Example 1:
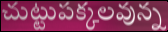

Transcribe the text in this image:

చుట్టుపక్కలవున్న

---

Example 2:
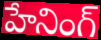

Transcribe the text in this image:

హేనింగ్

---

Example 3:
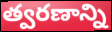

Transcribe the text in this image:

త్వరణాన్ని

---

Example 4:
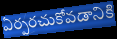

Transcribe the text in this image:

ఏర్పరచుకోవడానికి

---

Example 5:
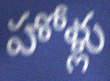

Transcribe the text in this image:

హోళ్లు